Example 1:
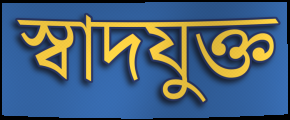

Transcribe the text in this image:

স্বাদযুক্ত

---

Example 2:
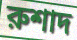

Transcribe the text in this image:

রুশাদ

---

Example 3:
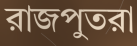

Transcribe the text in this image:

রাজপুতরা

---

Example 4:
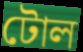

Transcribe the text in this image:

টোল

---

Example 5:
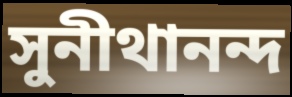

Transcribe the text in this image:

সুনীথানন্দ